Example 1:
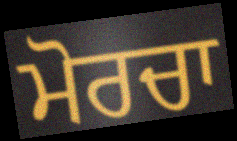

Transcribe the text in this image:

ਮੋਰਚਾ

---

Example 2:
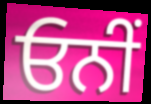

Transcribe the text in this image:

ਓਨੀਂ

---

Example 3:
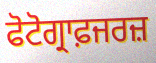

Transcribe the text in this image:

ਫੋਟੋਗ੍ਰਾਫ਼ਜਰਜ਼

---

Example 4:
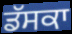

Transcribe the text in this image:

ਡੱਸਕਾ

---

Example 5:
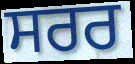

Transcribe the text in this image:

ਸਰਰ